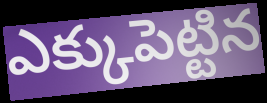
ఎక్కుపెట్టిన